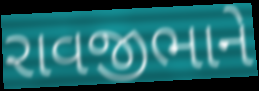
રાવજીભાને